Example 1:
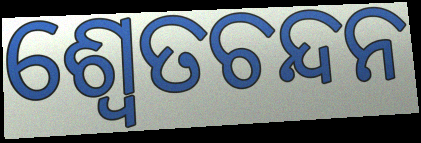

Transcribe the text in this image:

ଶ୍ୱେତଚନ୍ଦନ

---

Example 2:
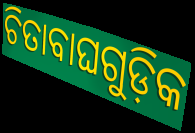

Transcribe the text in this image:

ଚିତାବାଘଗୁଡ଼ିକ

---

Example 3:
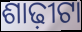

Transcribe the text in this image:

ଶାଢ଼ୀଟା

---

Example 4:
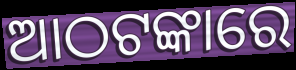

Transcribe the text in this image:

ଆଠଟଙ୍କାରେ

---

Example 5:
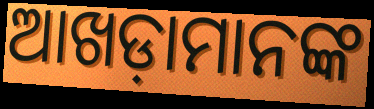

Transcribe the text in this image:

ଆଖଡ଼ାମାନଙ୍କ